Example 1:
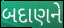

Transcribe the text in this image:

બદાણને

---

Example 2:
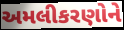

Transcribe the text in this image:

અમલીકરણોને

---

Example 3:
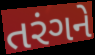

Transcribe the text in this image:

તરંગને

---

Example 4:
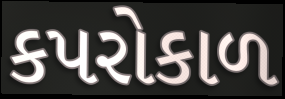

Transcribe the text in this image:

કપરોકાળ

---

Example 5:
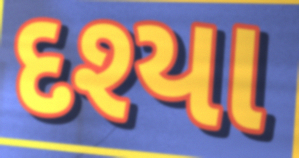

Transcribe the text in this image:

દશ્યા